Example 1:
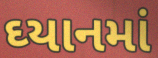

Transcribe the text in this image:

ઘ્યાનમાં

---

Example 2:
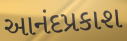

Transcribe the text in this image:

આનંદપ્રકાશ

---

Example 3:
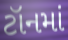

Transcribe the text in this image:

ટૉનમાં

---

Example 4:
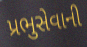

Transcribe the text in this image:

પ્રભુસેવાની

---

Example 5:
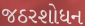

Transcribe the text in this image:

જઠરશોધન